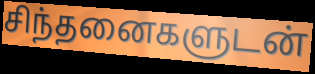
சிந்தனைகளுடன்